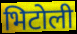
भिटोली